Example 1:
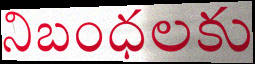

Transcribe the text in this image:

నిబంధలకు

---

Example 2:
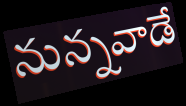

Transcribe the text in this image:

నున్నవాడే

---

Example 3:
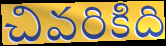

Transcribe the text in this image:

చివరికిది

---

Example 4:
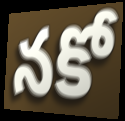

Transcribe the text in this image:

నకో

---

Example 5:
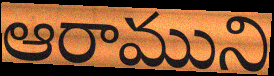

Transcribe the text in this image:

ఆరాముని